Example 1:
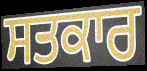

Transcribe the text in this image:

ਸਤਕਾਰ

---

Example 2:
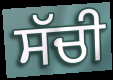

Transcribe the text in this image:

ਸੱਚੀ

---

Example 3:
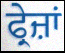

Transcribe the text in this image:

ਫ੍ਰੇਜ਼ਾਂ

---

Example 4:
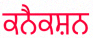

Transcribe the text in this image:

ਕਨੈਕਸ਼ਨ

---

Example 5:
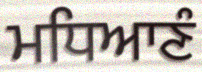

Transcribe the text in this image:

ਮਧਿਆਣੰ